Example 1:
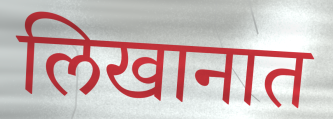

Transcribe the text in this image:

लिखानात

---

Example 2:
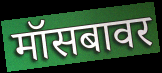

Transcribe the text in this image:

मॉसबावर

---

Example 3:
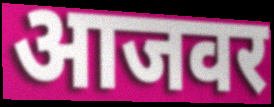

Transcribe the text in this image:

आजवर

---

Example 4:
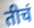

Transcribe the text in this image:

तीचं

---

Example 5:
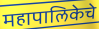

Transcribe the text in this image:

महापालिकेचे